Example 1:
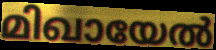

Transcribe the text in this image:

മിഖായേൽ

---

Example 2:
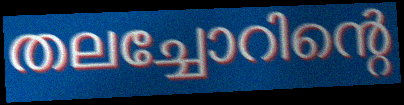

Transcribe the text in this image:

തലച്ചോറിന്റെ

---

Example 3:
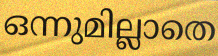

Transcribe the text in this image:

ഒന്നുമില്ലാതെ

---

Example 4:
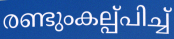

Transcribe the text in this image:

രണ്ടുംകല്പ്പിച്ച്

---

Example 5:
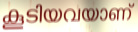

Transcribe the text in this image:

കൂടിയവയാണ്